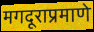
मगदूराप्रमाणे